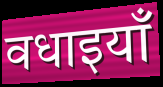
वधाइयाँ